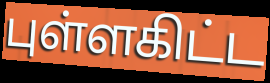
புள்ளகிட்ட